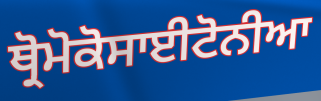
ਥ੍ਰੋਮੋਕੋਸਾਈਟੋਨੀਆ